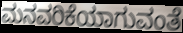
ಮನವರಿಕೆಯಾಗುವಂತೆ